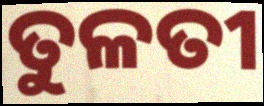
ତୁଳତୀ